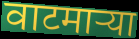
वाटमाऱ्या